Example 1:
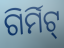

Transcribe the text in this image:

ଗିର୍ମିଟ୍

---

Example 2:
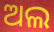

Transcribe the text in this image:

ଅଲ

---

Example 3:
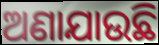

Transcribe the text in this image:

ଅଣାଯାଉଛି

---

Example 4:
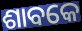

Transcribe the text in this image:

ଶାବକେ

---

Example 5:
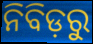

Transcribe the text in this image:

ନିବିଡ଼ରୁ